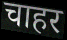
चाहर